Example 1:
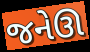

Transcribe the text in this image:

જનેઊ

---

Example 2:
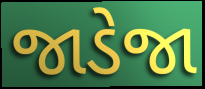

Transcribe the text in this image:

જાડેજા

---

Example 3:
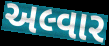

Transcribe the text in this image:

અલ્વાર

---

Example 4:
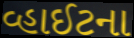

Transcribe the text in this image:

વ્હાઈટના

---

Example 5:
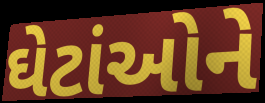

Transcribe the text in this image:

ઘેટાંઓને